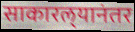
साकारल्यानंतर